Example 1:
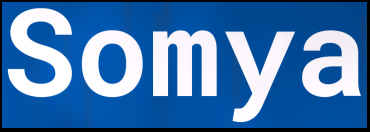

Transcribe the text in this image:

Somya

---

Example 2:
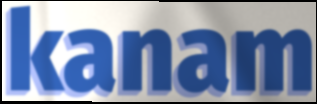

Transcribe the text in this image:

kanam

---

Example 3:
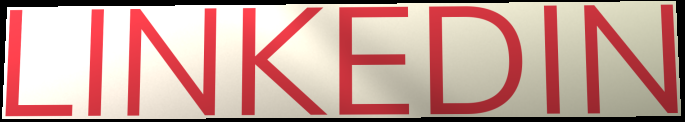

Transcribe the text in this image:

LINKEDIN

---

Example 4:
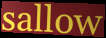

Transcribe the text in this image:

sallow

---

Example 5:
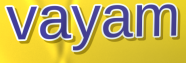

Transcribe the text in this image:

vayam